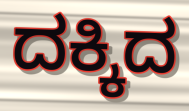
ದಕ್ಕಿದ